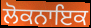
ਲੋਕਨਾਇਕ